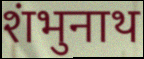
शंभुनाथ